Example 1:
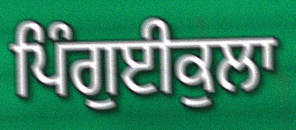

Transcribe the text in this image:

ਪਿੰਗੁਈਕੁਲਾ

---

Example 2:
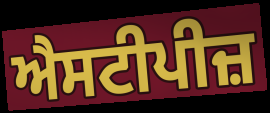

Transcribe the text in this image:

ਐਸਟੀਪੀਜ਼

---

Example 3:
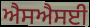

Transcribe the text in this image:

ਐਸਐਸਈ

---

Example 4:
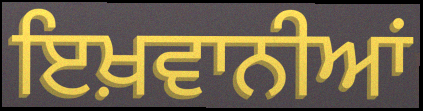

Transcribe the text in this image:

ਇਖ਼ਵਾਨੀਆਂ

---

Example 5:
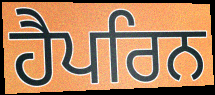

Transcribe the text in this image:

ਹੈਪਰਿਨ